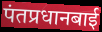
पंतप्रधानबाई